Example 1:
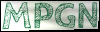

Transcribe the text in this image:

MPGN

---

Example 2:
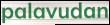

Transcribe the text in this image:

palavudan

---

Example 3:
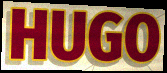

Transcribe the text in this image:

HUGO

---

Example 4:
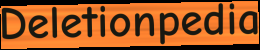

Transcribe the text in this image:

Deletionpedia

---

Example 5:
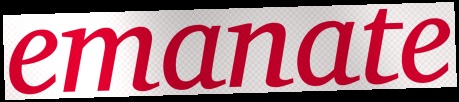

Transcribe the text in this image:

emanate